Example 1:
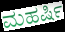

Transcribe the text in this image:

ಮಹರ್ಷಿ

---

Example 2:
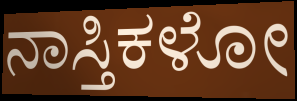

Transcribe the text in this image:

ನಾಸ್ತಿಕಳೋ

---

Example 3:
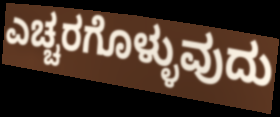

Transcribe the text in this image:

ಎಚ್ಚರಗೊಳ್ಳುವುದು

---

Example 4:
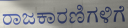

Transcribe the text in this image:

ರಾಜಕಾರಣಿಗಳಿಗೆ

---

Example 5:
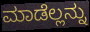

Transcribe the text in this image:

ಮಾಡೆಲ್ಲನ್ನು